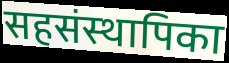
सहसंस्थापिका